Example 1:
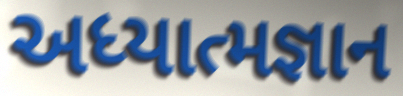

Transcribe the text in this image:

અધ્યાત્મજ્ઞાન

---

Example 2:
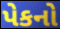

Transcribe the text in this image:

પેકનો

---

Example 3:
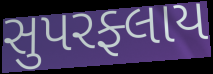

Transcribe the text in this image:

સુપરફ્લાય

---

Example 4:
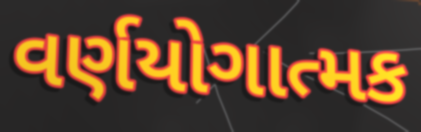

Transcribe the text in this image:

વર્ણયોગાત્મક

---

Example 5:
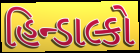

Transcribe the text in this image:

હિન્ડાલ્કો